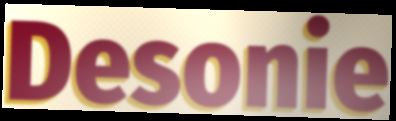
Desonie